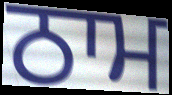
ਠਾਮ